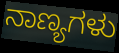
ನಾಣ್ಯಗಳು